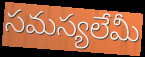
సమస్యలేమీ